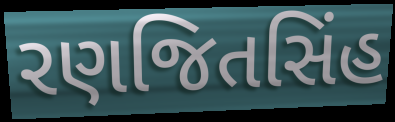
રણજિતસિંહ